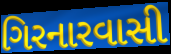
ગિરનારવાસી